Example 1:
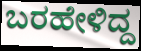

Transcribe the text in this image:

ಬರಹೇಳಿದ್ದ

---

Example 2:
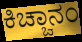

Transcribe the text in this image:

ಕಿಚ್ಚಾನಂ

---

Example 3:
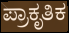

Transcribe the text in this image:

ಪ್ರಾಕೃತಿಕ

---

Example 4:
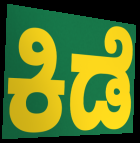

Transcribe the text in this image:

ಕಿಡೆ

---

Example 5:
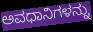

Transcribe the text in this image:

ಅವಧಾನಿಗಳನ್ನು